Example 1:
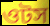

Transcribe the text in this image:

ওটস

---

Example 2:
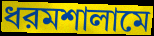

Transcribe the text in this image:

ধরমশালামে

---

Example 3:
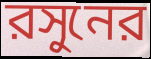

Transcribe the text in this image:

রসুনের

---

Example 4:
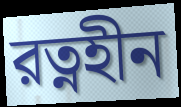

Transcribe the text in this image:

রত্নহীন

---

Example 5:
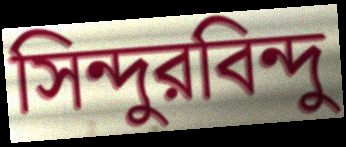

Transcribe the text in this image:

সিন্দুরবিন্দু